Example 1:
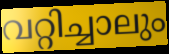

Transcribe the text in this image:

വറ്റിച്ചാലും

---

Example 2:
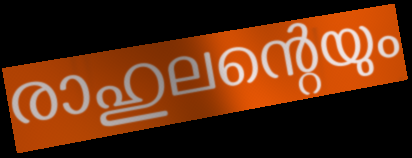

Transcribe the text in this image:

രാഹുലന്റെയും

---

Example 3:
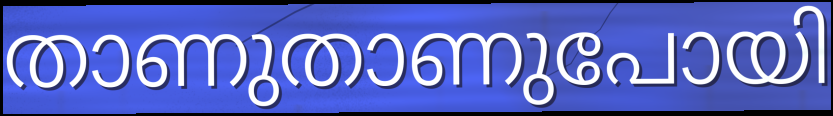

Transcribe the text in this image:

താണുതാണുപോയി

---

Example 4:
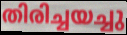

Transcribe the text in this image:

തിരിച്ചയച്ചു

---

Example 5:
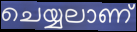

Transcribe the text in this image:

ചെയ്യലാണ്